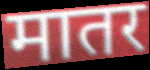
मातर